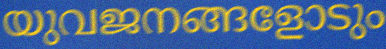
യുവജനങ്ങളോടും